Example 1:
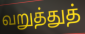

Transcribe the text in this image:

வறுத்துத்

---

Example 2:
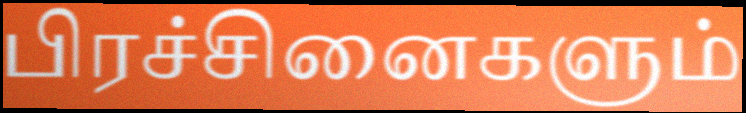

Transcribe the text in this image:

பிரச்சினைகளும்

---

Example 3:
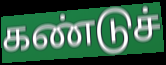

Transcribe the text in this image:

கண்டுச்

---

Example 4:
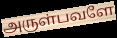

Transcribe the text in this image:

அருள்பவளே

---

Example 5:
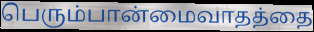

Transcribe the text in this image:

பெரும்பான்மைவாதத்தை